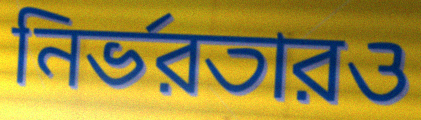
নির্ভরতারও